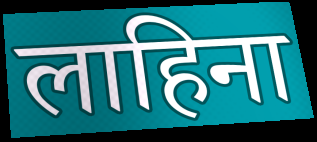
लाहिना